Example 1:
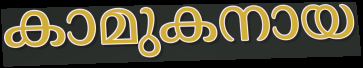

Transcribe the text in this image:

കാമുകനായ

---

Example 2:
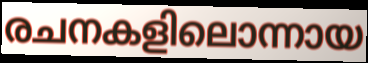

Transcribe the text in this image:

രചനകളിലൊന്നായ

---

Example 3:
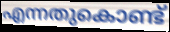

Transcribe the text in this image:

എന്നതുകൊണ്ട്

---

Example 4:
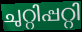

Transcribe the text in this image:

ചുറ്റിപ്പറ്റി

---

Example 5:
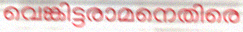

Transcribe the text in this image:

വെങ്കിട്ടരാമനെതിരെ